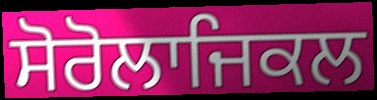
ਸੋਰੋਲਾਜਿਕਲ